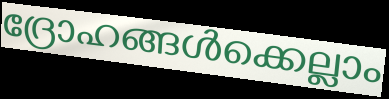
ദ്രോഹങ്ങൾക്കെല്ലാം